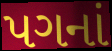
પગનાં